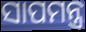
ସାପମନ୍ତ୍ର